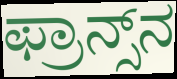
ಫ್ರಾನ್ಸ್‌ನ